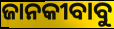
ଜାନକୀବାବୁ